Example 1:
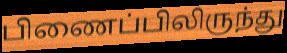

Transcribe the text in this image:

பிணைப்பிலிருந்து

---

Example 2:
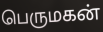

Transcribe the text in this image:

பெருமகன்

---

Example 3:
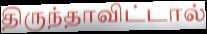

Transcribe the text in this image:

திருந்தாவிட்டால்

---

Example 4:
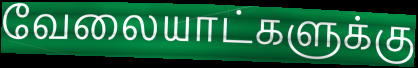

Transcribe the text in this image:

வேலையாட்களுக்கு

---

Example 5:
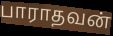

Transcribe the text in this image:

பாராதவன்